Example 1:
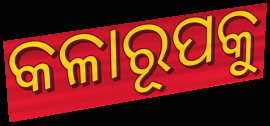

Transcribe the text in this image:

କଳାରୂପକୁ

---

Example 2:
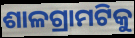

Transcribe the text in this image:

ଶାଳଗ୍ରାମଟିକୁ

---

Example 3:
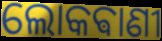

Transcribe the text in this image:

ଲୋକଵାଣୀ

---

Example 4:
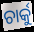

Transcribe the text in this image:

ଚାର୍କୁ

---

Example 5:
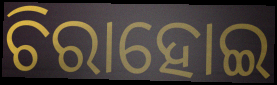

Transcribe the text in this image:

ଚିରାହୋଇ